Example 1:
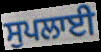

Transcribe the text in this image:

ਸੁਪਲਾਈ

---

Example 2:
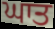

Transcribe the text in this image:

ਘਾਤ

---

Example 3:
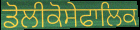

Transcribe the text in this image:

ਡੋਲੀਕੋਸੇਫਾਲਿਕ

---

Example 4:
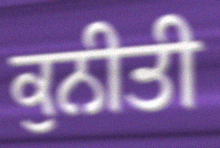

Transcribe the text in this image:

ਕੁਨੀਤੀ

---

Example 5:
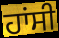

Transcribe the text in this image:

ਹਾਂਸੀ